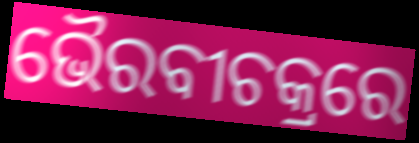
ଭୈରବୀଚକ୍ରରେ